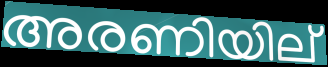
അരണിയില്